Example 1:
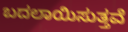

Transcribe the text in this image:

ಬದಲಾಯಿಸುತ್ತವೆ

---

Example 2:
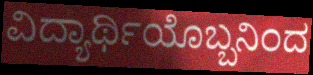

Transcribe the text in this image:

ವಿದ್ಯಾರ್ಥಿಯೊಬ್ಬನಿಂದ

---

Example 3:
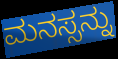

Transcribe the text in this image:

ಮನಸ್ಸನ್ನು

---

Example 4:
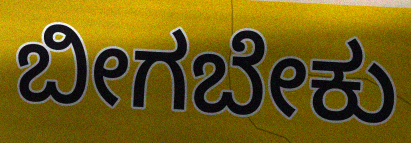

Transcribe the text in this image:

ಬೀಗಬೇಕು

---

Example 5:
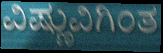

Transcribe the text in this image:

ವಿಷ್ಣುವಿಗಿಂತ